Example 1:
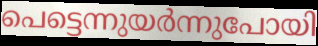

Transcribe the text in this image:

പെട്ടെന്നുയർന്നുപോയി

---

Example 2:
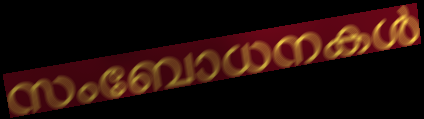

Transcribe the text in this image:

സംബോധനകൾ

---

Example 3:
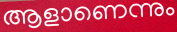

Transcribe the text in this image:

ആളാണെന്നും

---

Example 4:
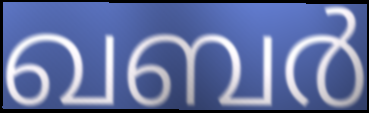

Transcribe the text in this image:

ഖബർ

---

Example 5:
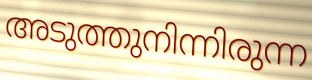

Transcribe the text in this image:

അടുത്തുനിന്നിരുന്ന